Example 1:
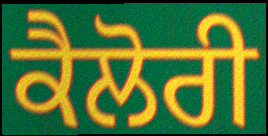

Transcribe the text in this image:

ਕੈਲੋਰੀ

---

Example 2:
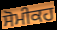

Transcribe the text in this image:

ਸੋਮੀਕਹ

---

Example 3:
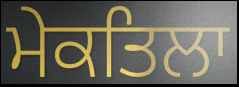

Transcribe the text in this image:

ਮੇਕਤਿਲਾ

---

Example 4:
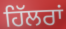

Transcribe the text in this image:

ਹਿੱਲਰਾਂ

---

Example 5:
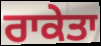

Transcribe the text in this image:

ਰਾਕੇਤਾ